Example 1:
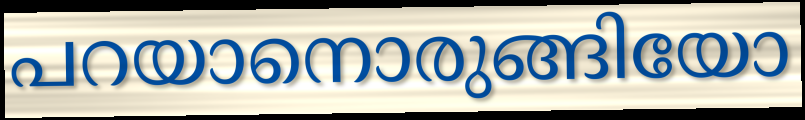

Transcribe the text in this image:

പറയാനൊരുങ്ങിയോ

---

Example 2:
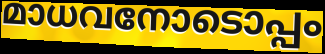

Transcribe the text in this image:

മാധവനോടൊപ്പം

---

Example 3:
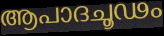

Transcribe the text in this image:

ആപാദചൂഢം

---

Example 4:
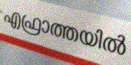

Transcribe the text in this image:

എഫ്രാത്തയിൽ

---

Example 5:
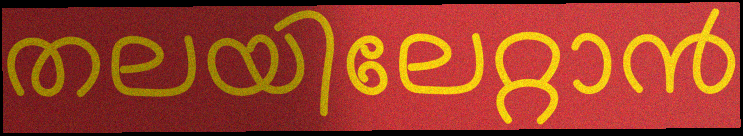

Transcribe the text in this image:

തലയിലേറ്റാൻ